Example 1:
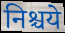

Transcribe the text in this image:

निश्चये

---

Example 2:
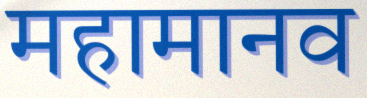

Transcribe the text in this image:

महामानव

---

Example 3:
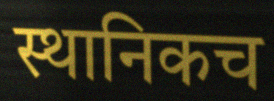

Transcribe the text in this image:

स्थानिकच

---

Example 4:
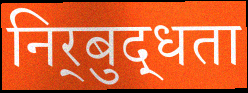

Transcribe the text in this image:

निर्बुद्धता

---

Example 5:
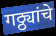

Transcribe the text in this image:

गठ्ठ्यांचे